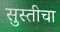
सुस्तीचा